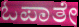
ಓಪಾತೇ